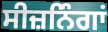
ਸੀਜ਼ਨਿੰਗਾਂ